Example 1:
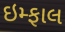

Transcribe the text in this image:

ઇમ્ફાલ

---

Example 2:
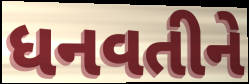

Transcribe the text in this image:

ધનવતીને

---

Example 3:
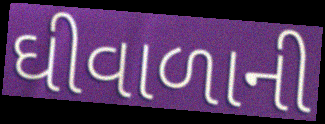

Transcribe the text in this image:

ઘીવાળાની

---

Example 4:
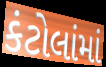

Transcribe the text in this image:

કંટોલાંમાં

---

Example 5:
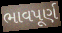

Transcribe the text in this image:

ભાવપૂર્ણ